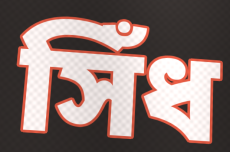
সিঁধ